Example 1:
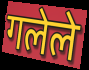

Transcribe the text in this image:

गलेले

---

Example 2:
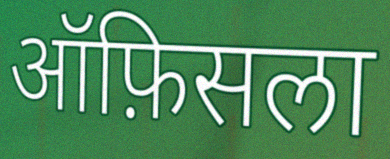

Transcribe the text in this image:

ऑफ़िसला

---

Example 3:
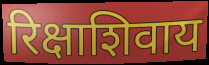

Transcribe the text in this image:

रिक्षाशिवाय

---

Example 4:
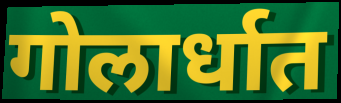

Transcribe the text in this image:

गोलार्धात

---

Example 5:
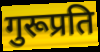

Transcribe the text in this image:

गुरूप्रति